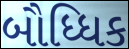
બૌધ્ધિક